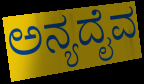
ಅನ್ಯದೈವ